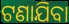
ଟଣାଯିବା